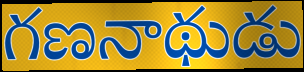
గణనాథుడు